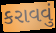
કરાવવું